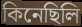
কিনেছিলি